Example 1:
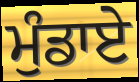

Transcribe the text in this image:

ਮੁੰਡਾਏ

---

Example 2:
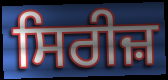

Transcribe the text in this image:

ਸਿਰੀਜ਼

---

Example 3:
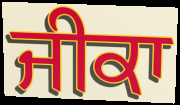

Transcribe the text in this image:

ਜੀਕਾ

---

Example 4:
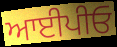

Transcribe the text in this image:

ਆਈਪੀਓ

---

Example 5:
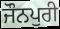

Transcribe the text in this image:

ਜੌਨਪੁਰੀ